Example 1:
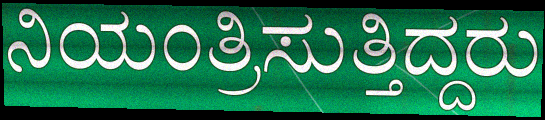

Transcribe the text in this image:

ನಿಯಂತ್ರಿಸುತ್ತಿದ್ದರು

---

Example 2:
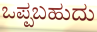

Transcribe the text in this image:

ಒಪ್ಪಬಹುದು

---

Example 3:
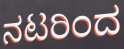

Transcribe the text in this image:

ನಟರಿಂದ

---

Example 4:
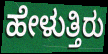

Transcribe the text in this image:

ಹೇಳುತ್ತಿರು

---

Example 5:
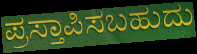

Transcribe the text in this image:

ಪ್ರಸ್ತಾಪಿಸಬಹುದು